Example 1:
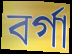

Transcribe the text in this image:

বর্গা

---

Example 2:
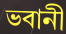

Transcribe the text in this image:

ভবানী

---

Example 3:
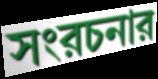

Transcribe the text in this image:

সংরচনার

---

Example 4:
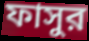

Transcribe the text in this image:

ফাসুর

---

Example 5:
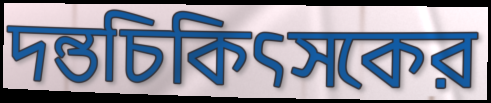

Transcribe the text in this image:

দন্তচিকিৎসকের